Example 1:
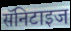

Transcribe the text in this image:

सॅनिटाइज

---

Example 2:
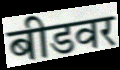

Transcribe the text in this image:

बीडवर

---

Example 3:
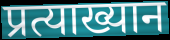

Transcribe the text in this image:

प्रत्याख्यान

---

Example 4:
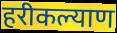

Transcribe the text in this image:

हरीकल्याण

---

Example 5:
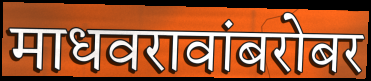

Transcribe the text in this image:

माधवरावांबरोबर